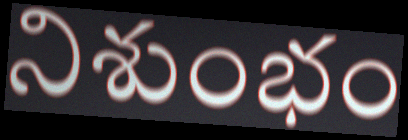
నిశుంభం